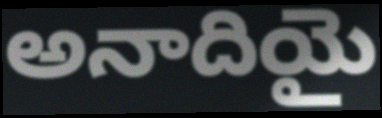
అనాదియై